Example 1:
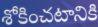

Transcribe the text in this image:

శోకించటానికి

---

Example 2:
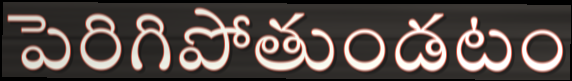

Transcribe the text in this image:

పెరిగిపోతుండటం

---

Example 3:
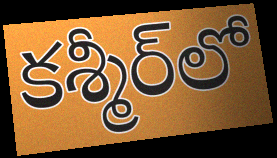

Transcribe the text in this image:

కశ్మీర్‌లో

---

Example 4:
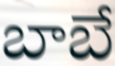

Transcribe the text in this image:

బాబే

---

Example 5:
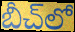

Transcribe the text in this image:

బీచ్‌లో